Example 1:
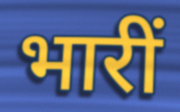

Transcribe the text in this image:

भारीं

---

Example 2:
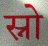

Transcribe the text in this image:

स्नो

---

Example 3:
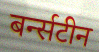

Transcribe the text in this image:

बर्न्सटीन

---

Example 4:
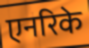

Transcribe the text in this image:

एनरिके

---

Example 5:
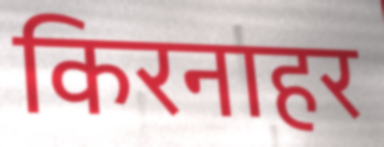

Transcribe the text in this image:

किरनाहर